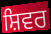
ਸ਼ਿਵਰ